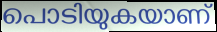
പൊടിയുകയാണ്